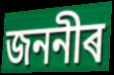
জননীৰ